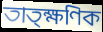
তাত্ক্ষণিক